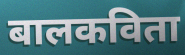
बालकविता